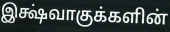
இக்ஷ்வாகுக்களின்